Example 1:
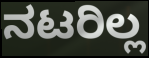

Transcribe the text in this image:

ನಟರಿಲ್ಲ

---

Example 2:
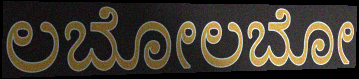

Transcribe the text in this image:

ಲಬೋಲಬೋ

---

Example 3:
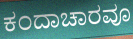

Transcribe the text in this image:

ಕಂದಾಚಾರವೂ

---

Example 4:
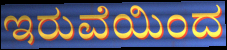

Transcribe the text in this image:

ಇರುವೆಯಿಂದ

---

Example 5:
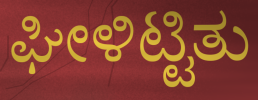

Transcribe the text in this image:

ಘೀಳಿಟ್ಟಿತು